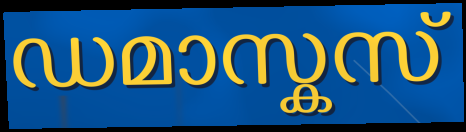
ഡമാസ്കസ്